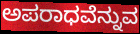
ಅಪರಾಧವೆನ್ನುವ